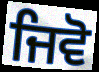
ਜਿਵੋ